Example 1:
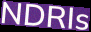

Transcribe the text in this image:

NDRIs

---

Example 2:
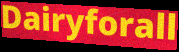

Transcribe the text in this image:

Dairyforall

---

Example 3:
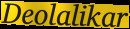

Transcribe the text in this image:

Deolalikar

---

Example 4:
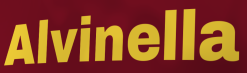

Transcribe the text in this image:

Alvinella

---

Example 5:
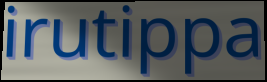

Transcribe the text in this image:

irutippa